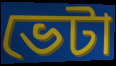
ভেটা